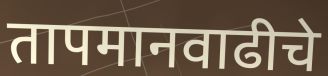
तापमानवाढीचे